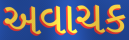
અવાચક